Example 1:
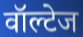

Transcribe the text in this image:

वॉल्टेज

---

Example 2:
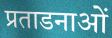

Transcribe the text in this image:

प्रताडनाओं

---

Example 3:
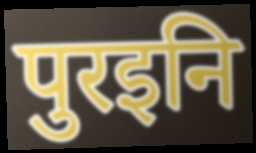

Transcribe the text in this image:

पुरइनि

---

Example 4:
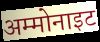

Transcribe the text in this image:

अम्मोनाइट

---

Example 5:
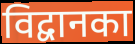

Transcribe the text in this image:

विद्वानका